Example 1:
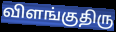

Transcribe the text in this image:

விளங்குதிரு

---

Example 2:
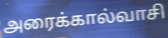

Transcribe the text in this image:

அரைக்கால்வாசி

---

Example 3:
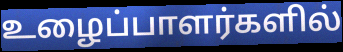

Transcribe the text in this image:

உழைப்பாளர்களில்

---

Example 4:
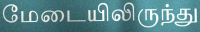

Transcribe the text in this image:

மேடையிலிருந்து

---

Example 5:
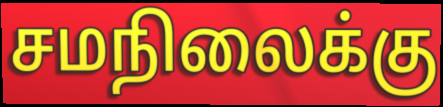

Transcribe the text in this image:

சமநிலைக்கு